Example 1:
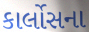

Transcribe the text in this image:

કાર્લોસના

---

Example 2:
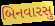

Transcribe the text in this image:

બિનવારસુ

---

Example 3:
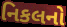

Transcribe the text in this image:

નિકલનો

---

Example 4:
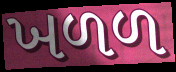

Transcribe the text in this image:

ખળળ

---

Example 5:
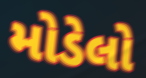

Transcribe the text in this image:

મોડેલો